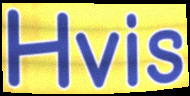
Hvis